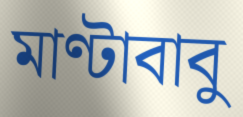
মাণ্টাবাবু